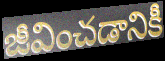
జీవించడానికీ